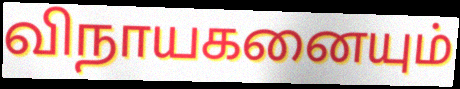
விநாயகனையும்